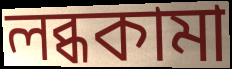
লব্ধকামা